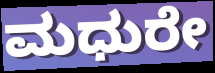
ಮಧುರೇ